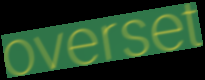
overset